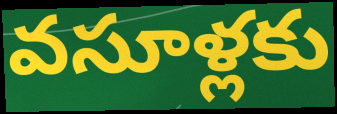
వసూళ్లకు